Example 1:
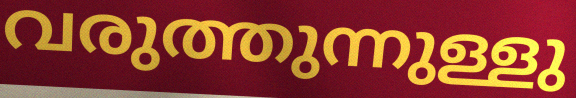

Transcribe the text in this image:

വരുത്തുന്നുള്ളു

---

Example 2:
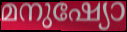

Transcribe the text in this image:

മനുഷ്യോ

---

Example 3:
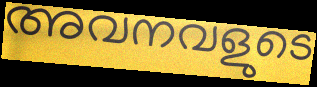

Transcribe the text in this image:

അവനവളുടെ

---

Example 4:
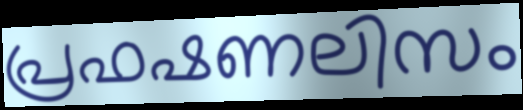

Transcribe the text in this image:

പ്രഫഷണലിസം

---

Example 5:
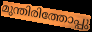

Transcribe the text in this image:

മുന്തിരിത്തോപ്പു